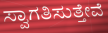
ಸ್ವಾಗತಿಸುತ್ತೇವೆ